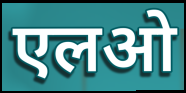
एलओ